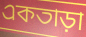
একতাড়া